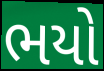
ભયો